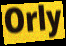
Orly